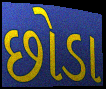
છોડા